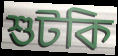
শুটকি